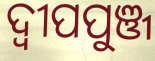
ଦ୍ଵୀପପୁଞ୍ଜ